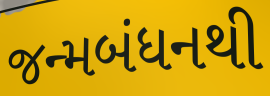
જન્મબંધનથી